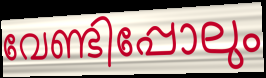
വേണ്ടിപ്പോലും